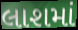
લાશમાં